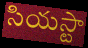
సియస్టా